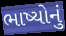
ભાષ્યોનું